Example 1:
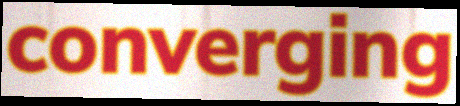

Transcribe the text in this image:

converging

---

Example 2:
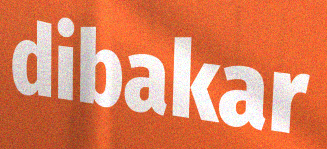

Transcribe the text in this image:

dibakar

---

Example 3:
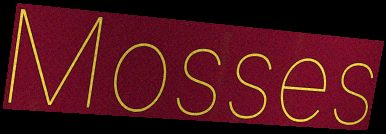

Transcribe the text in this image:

Mosses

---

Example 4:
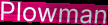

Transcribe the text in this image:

Plowman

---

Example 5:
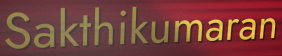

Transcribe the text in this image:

Sakthikumaran